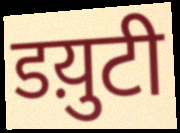
डय़ुटी